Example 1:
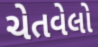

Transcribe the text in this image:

ચેતવેલો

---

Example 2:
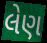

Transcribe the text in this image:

લેણ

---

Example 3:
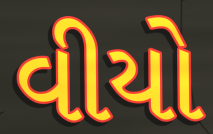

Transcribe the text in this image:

વીયો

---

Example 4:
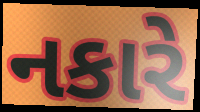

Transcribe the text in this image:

નકારે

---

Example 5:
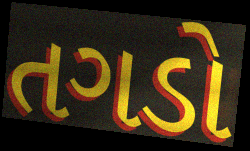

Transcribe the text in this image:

તગડો